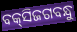
ବକ୍‌ସିଜଗବନ୍ଧୁ